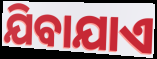
ଯିବାଯାଏ